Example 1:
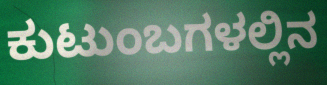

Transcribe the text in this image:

ಕುಟುಂಬಗಳಲ್ಲಿನ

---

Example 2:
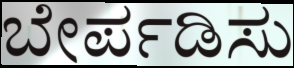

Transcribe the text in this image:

ಬೇರ್ಪಡಿಸು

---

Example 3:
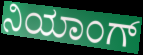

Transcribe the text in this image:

ನಿಯಾಂಗ್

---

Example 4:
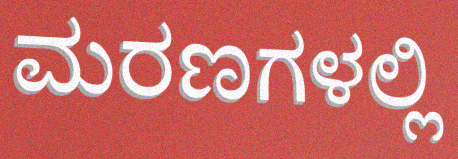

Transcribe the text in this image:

ಮರಣಗಳಲ್ಲಿ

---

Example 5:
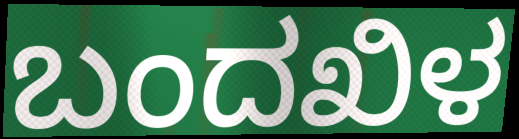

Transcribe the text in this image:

ಬಂದಖಿಳ